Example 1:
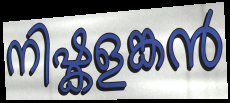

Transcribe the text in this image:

നിഷ്കളങ്കൻ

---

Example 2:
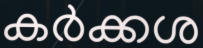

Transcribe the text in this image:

കർക്കശ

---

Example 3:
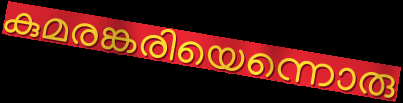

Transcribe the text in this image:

കുമരങ്കരിയെന്നൊരു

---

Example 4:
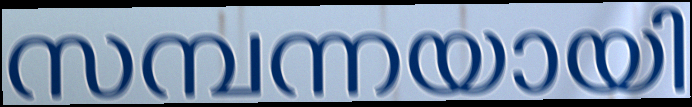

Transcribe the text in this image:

സമ്പന്നയായി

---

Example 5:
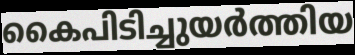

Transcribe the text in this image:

കൈപിടിച്ചുയർത്തിയ